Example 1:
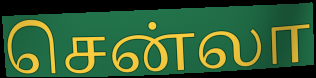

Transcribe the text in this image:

சென்லா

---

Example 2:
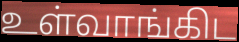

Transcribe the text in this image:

உள்வாங்கிட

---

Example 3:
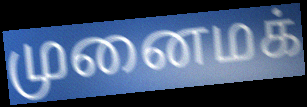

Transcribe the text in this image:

முனைமக்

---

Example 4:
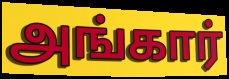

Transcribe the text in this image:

அங்கார்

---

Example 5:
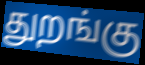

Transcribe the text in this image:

துறங்கு